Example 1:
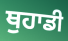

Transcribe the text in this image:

ਥੁਹਾਡੀ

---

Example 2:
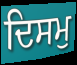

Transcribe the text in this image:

ਦਿਸਮੁ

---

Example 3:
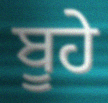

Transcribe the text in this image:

ਬੂਹੇ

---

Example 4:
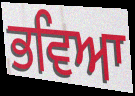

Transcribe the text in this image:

ਭਵਿਆ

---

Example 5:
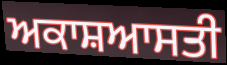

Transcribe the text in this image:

ਅਕਾਸ਼ਆਸਤੀ